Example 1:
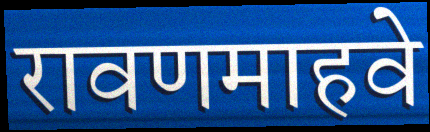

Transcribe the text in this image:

रावणमाहवे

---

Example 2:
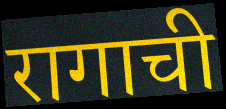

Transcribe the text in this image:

रागाची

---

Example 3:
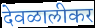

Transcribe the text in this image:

देवळालीकर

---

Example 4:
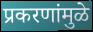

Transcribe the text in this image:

प्रकरणांमुळे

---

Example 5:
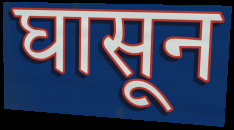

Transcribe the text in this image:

घासून